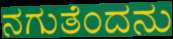
ನಗುತೆಂದನು